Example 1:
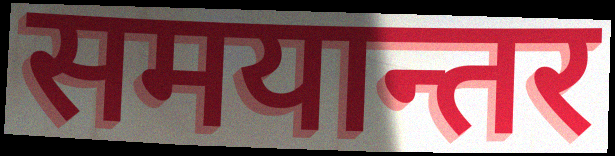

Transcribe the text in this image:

समयान्तर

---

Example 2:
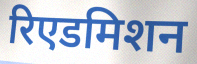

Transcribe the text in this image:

रिएडमिशन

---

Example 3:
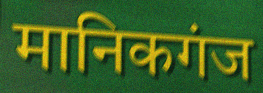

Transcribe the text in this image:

मानिकगंज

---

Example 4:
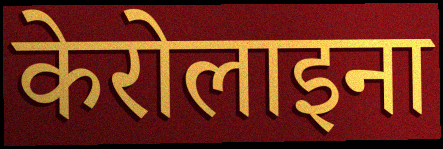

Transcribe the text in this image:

केरोलाइना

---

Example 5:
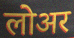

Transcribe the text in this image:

लोअर